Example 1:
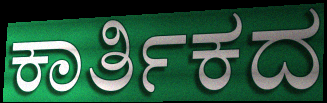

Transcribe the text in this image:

ಕಾರ್ತಿಕದ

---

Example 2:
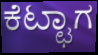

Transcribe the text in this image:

ಕೆಟ್ಟಾಗ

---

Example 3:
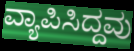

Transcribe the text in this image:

ವ್ಯಾಪಿಸಿದ್ದವು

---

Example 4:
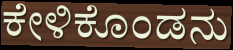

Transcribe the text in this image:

ಕೇಳಿಕೊಂಡನು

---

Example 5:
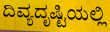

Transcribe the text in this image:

ದಿವ್ಯದೃಷ್ಟಿಯಲ್ಲಿ